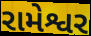
રામેશ્વર